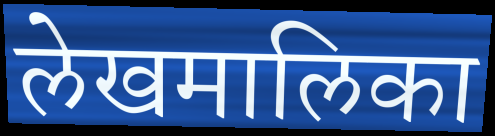
लेखमालिका